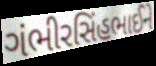
ગંભીરસિંહભાઈને